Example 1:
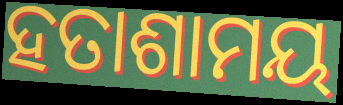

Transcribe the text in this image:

ହତାଶାମୟ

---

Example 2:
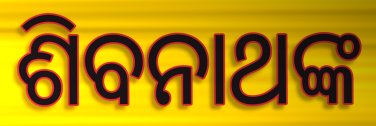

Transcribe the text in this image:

ଶିବନାଥଙ୍କ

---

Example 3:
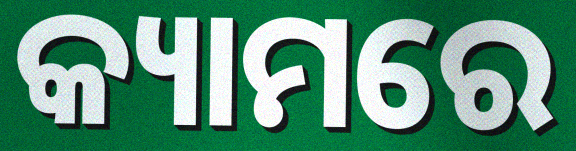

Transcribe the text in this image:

କ୍ୟାମରେ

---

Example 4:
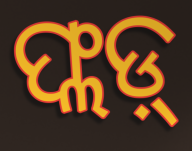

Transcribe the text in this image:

ଫ୍ଲଡ଼୍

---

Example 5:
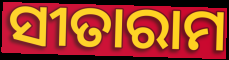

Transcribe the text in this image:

ସୀତାରାମ